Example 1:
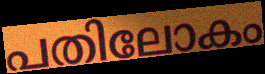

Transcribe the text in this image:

പതിലോകം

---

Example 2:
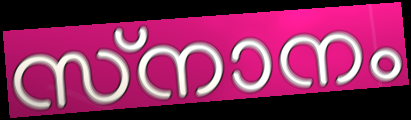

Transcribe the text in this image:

സ്‌നാനം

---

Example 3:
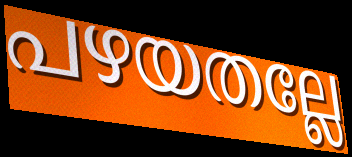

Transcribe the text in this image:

പഴയതല്ലേ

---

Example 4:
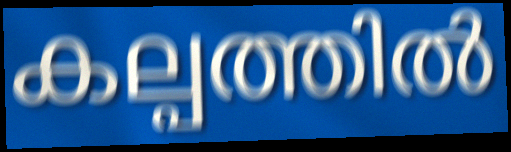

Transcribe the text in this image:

കല്പത്തിൽ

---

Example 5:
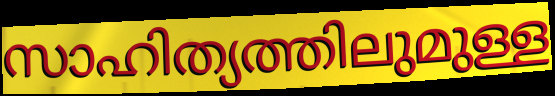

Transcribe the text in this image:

സാഹിത്യത്തിലുമുള്ള